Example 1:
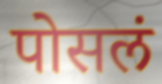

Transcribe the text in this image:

पोसलं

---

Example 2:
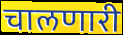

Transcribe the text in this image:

चालणारी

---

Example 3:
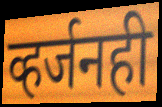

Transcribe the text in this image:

व्हर्जनही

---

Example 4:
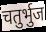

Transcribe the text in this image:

चतुर्भुज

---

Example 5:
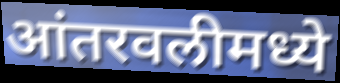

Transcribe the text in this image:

आंतरवलीमध्ये